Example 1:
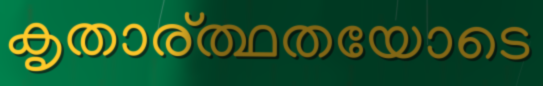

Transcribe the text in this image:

കൃതാര്ത്ഥതയോടെ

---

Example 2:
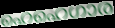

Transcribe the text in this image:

ഹെഹെഗാര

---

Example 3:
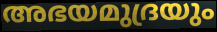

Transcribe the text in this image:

അഭയമുദ്രയും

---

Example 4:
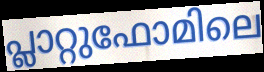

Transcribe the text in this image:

പ്ലാറ്റുഫോമിലെ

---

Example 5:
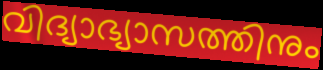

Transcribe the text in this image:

വിദ്യാഭ്യാസത്തിനും